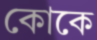
কোকে